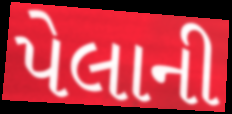
પેલાની